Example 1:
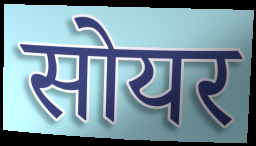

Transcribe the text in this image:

सोयर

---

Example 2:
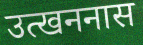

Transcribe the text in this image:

उत्खननास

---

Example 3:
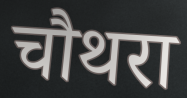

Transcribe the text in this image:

चौथरा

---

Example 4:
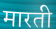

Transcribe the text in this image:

मारती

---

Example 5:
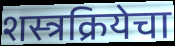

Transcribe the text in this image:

शस्त्रक्रियेचा